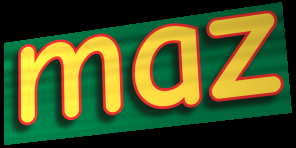
maz